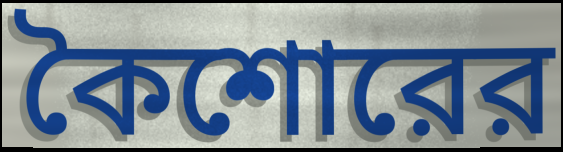
কৈশোরের